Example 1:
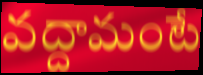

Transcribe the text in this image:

వద్దామంటే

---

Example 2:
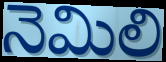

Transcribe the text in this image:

నెమిలి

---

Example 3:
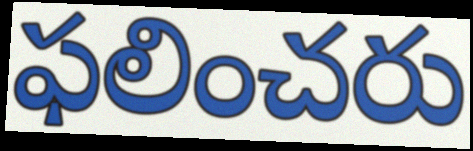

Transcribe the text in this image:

ఫలించరు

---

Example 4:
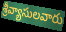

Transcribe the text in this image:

శ్రీవ్యాసులవారు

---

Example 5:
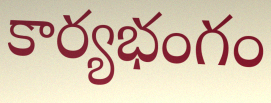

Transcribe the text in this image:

కార్యభంగం